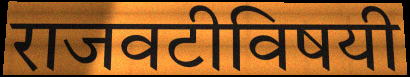
राजवटीविषयी